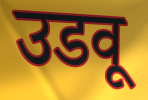
उडवू